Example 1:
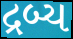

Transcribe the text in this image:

દ્રબ્ય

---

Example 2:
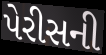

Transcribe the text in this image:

પેરીસની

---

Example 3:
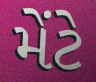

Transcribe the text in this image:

મેંટે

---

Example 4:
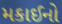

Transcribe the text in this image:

મકાઈનો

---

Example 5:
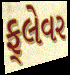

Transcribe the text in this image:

ફ્‌લેવર